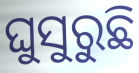
ଘୁସୁରୁଛି